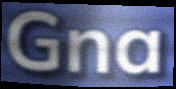
Gna